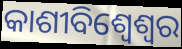
କାଶୀବିଶ୍ୱେଶ୍ୱର